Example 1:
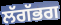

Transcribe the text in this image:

ਲੱਗੱਭਗ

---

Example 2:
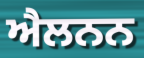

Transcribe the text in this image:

ਐਲਨਨ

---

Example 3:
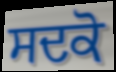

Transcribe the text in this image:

ਸਦਕੋ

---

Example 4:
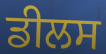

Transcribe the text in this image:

ਡੀਲਸ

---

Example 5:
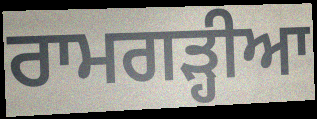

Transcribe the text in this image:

ਰਾਮਗਡ਼੍ਹੀਆ